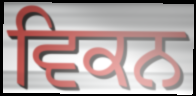
ਵਿਕਨ